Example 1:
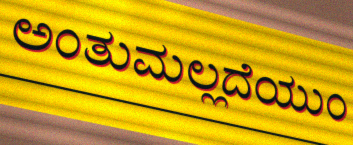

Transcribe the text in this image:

ಅಂತುಮಲ್ಲದೆಯುಂ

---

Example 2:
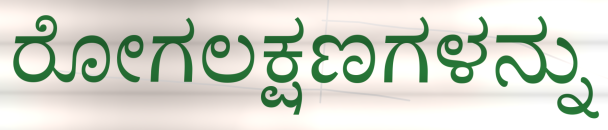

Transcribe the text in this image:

ರೋಗಲಕ್ಷಣಗಳನ್ನು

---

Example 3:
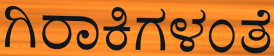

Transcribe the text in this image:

ಗಿರಾಕಿಗಳಂತೆ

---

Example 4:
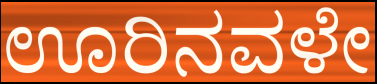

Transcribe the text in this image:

ಊರಿನವಳೇ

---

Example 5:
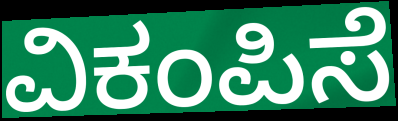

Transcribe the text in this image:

ವಿಕಂಪಿಸೆ